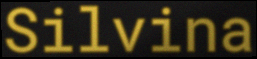
Silvina